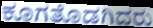
ಕೂಗತೊಡಗಿದರು